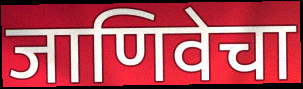
जाणिवेचा